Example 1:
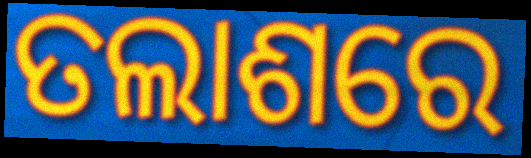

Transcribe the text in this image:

ତଲାଶରେ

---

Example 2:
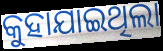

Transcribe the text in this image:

କୁହାଯାଇଥିଲା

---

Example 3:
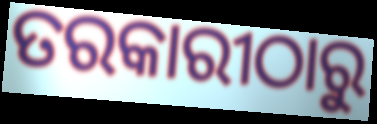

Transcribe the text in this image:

ତରକାରୀଠାରୁ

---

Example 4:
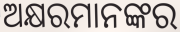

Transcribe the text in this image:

ଅକ୍ଷରମାନଙ୍କର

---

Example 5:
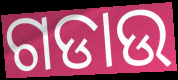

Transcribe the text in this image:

ଗଡାଉ